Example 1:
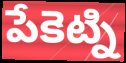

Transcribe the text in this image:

పేకెట్ని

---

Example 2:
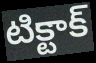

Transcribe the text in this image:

టిక్టాక్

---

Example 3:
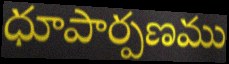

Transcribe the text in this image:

ధూపార్పణము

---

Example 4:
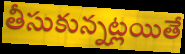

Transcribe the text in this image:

తీసుకున్నట్లయితే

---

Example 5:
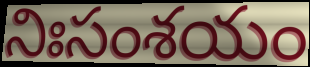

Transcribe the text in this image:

నిఃసంశయం